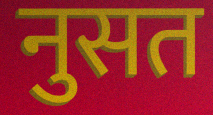
नुसत